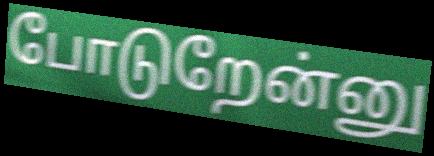
போடுறேன்னு